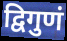
द्विगुणं